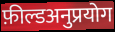
फ़ील्डअनुप्रयोग